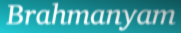
Brahmanyam